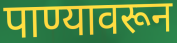
पाण्यावरून